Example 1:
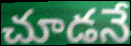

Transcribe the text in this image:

చూడనే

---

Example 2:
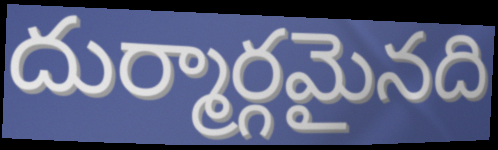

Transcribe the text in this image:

దుర్మార్గమైనది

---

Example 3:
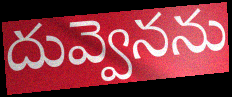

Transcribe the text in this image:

దువ్వెనను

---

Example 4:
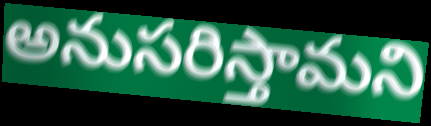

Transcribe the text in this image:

అనుసరిస్తామని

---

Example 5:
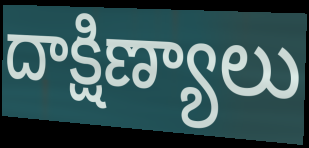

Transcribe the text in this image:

దాక్షిణ్యాలు